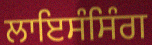
ਲਾਇਸੰਸਿੰਗ